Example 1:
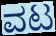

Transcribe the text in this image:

ವಟ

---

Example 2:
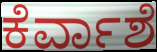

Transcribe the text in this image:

ಕೆರ್ವಾಶೆ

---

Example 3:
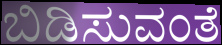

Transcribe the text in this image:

ಬಿಡಿಸುವಂತೆ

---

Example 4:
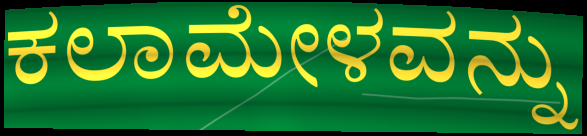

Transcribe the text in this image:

ಕಲಾಮೇಳವನ್ನು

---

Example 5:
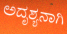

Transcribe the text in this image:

ಅದೃಶ್ಯನಾಗಿ